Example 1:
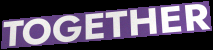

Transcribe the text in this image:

TOGETHER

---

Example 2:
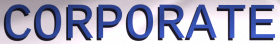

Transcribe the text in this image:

CORPORATE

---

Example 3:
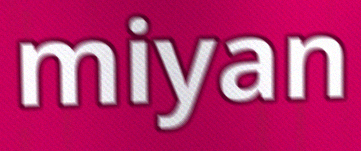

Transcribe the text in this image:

miyan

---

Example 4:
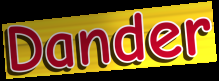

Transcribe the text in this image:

Dander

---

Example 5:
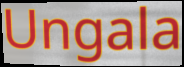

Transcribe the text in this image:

Ungala